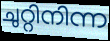
ചുറ്റിനിന്ന